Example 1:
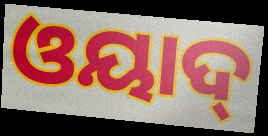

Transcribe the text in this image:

ଓୟାଦ୍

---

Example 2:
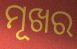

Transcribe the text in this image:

ମୂଖର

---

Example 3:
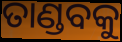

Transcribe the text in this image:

ତାଣ୍ଡବକୁ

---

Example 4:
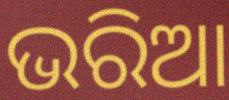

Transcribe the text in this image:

ଭରିଆ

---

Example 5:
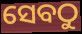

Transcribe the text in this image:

ସେବଠୁ